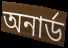
অনার্ড